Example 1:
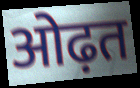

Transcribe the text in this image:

ओढ़त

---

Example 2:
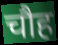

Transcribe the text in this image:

चौह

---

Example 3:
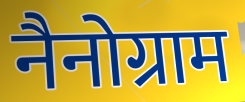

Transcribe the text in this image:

नैनोग्राम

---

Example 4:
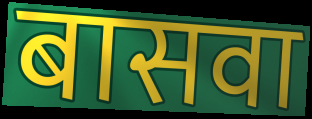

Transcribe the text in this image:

बासवा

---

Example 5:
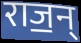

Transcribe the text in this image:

रा॒ज॒न्